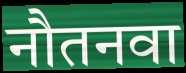
नौतनवा